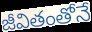
జీవితంతోనే